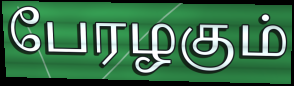
பேரழகும்